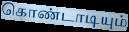
கொண்டாடியும்